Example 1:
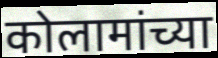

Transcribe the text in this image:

कोलामांच्या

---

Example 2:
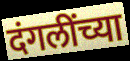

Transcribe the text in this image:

दंगलींच्या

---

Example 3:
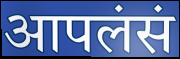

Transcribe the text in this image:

आपलंसं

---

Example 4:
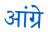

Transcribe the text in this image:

आंग्रे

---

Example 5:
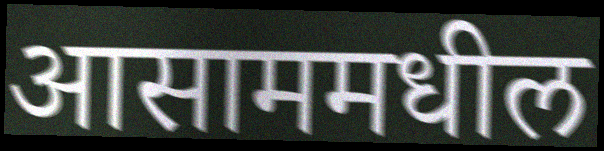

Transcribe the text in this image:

आसाममधील